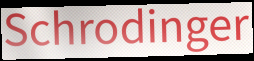
Schrodinger